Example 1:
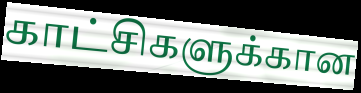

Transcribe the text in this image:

காட்சிகளுக்கான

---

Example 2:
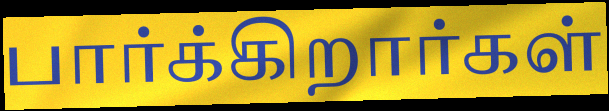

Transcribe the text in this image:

பார்க்கிறார்கள்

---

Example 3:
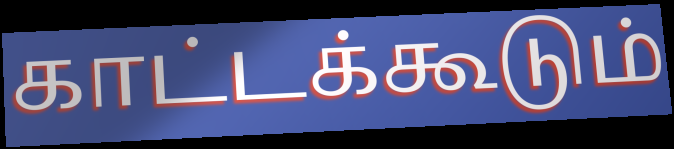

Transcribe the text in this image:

காட்டக்கூடும்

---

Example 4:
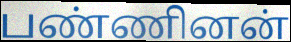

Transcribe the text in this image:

பண்ணினன்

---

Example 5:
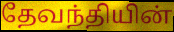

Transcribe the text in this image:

தேவந்தியின்